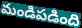
మండిపడింది